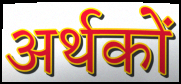
अर्थकों